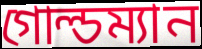
গোল্ডম্যান